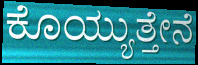
ಕೊಯ್ಯುತ್ತೇನೆ